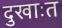
दुखाःत